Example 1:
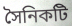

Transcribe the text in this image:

সৈনিকটি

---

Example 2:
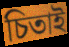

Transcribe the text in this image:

চিতাই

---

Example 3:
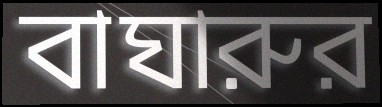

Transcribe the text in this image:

বাঘারুর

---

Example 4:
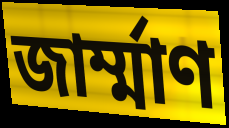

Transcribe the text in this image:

জার্ম্মাণ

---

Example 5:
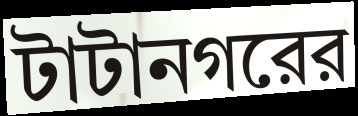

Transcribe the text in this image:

টাটানগরের